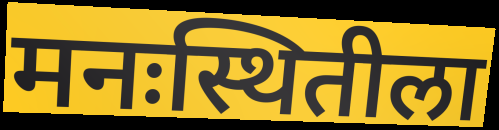
मनःस्थितीला